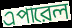
এপারেল